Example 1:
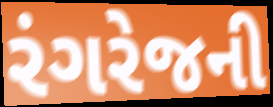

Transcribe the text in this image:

રંગરેજની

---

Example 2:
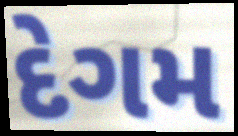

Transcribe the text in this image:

દેગમ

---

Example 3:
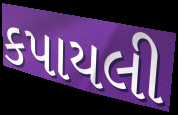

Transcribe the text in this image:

કપાયલી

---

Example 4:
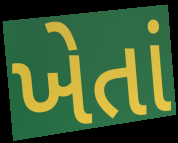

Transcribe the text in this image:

ખેતાં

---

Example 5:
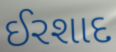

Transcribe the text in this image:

ઈરશાદ